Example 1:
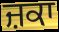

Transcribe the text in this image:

ਜ਼ਕਾ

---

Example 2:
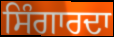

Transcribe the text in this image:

ਸਿੰਗਾਰਦਾ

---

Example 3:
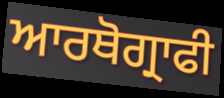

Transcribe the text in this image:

ਆਰਥੋਗ੍ਰਾਫੀ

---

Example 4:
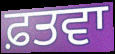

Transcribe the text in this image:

ਫ਼ਤਵਾ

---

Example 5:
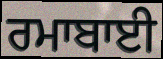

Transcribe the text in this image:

ਰਮਾਬਾਈ